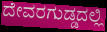
ದೇವರಗುಡ್ಡದಲ್ಲಿ